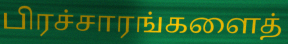
பிரச்சாரங்களைத்